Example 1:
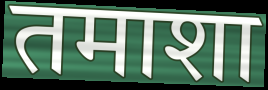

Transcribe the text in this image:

तमाशा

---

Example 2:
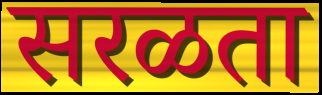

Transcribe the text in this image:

सरळता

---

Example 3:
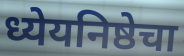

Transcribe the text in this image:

ध्येयनिष्ठेचा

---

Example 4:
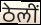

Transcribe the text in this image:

ठेलीं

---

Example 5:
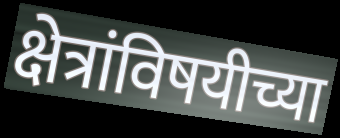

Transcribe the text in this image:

क्षेत्रांविषयीच्या